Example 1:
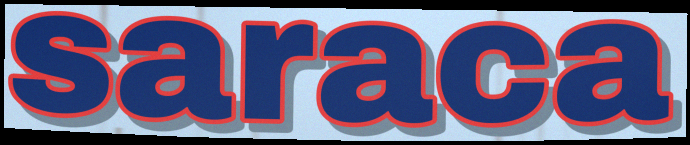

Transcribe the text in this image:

saraca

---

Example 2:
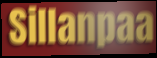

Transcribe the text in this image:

Sillanpaa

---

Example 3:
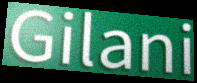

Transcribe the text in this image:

Gilani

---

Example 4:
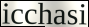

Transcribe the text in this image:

icchasi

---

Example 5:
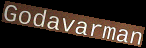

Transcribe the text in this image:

Godavarman